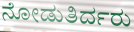
ನೋಡುತಿರ್ದರು